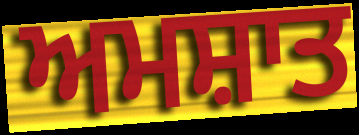
ਅਮਸ਼ਾਤ